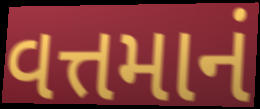
વત્તમાનં